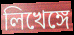
লিখেঙ্গে